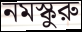
নমস্কুরু